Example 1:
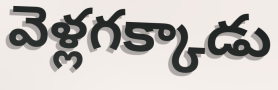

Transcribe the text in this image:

వెళ్లగక్కాడు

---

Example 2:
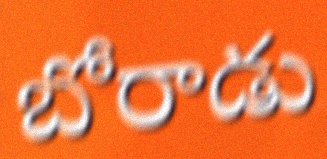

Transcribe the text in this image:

బోరాడు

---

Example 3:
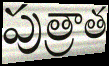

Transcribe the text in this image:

పుత్రాత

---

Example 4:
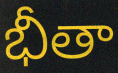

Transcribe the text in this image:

భీతా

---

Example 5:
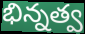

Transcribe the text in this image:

భిన్నత్వ